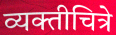
व्यक्तीचित्रे